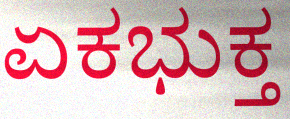
ಏಕಭುಕ್ತ